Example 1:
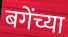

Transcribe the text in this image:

बगेंच्या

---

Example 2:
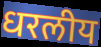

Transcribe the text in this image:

धरलीय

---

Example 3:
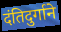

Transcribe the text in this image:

दंतिदुर्गाने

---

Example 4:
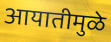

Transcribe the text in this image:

आयातीमुळे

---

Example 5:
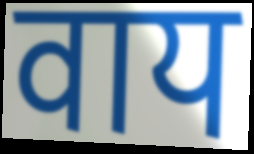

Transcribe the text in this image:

वाय